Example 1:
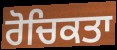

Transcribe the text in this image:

ਰੋਚਿਕਤਾ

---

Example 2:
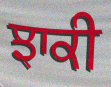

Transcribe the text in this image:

ਝਾਕੀ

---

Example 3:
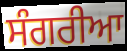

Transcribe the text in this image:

ਸੰਗਰੀਆ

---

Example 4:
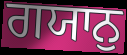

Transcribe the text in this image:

ਗਯਾਨੁ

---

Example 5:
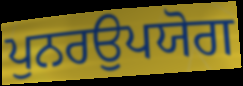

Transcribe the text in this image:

ਪੁਨਰਉਪਯੋਗ